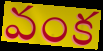
వంక